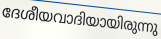
ദേശീയവാദിയായിരുന്നു